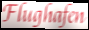
Flughafen